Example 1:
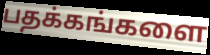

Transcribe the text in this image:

பதக்கங்களை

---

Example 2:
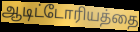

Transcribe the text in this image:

ஆடிட்டோரியத்தை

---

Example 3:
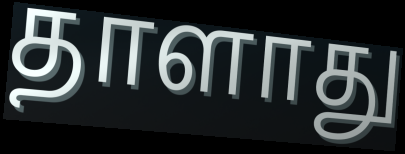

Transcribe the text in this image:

தாளாது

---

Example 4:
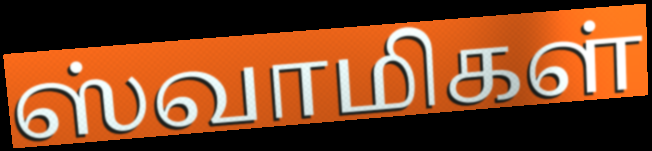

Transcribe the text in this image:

ஸ்வாமிகள்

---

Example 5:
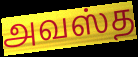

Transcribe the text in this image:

அவஸ்த